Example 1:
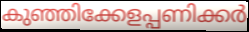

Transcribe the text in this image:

കുഞ്ഞിക്കേളപ്പണിക്കർ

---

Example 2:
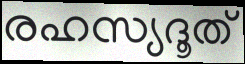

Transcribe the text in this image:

രഹസ്യദൂത്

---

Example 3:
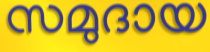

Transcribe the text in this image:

സമുദായ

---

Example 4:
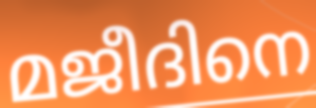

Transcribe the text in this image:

മജീദിനെ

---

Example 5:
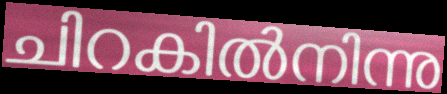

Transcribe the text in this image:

ചിറകിൽനിന്നു